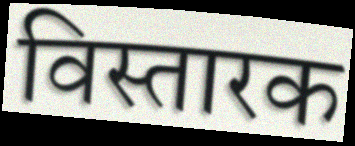
विस्तारक